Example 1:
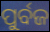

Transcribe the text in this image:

ପୁର୍ବଜ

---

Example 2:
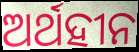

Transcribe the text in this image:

ଅର୍ଥହୀନ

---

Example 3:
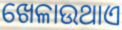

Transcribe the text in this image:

ଖେଳାଉଥାଏ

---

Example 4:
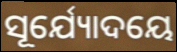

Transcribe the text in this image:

ସୂର୍ଯ୍ୟୋଦୟେ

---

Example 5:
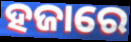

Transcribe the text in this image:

ହଜାରେ